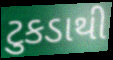
ટુકડાથી